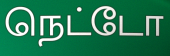
நெட்டோ